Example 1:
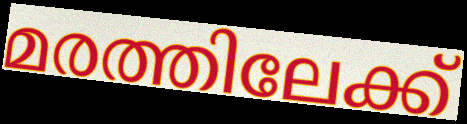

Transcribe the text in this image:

മരത്തിലേക്ക്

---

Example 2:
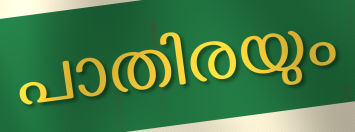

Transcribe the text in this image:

പാതിരയും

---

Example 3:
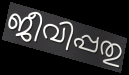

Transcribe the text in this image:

ജീവിപ്പതു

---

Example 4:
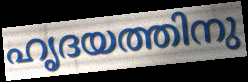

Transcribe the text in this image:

ഹൃദയത്തിനു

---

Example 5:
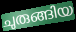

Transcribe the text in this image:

ചുരുങ്ങിയ